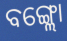
ବଙ୍ଗ୍ଲୋ